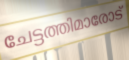
ചേട്ടത്തിമാരോട്